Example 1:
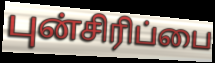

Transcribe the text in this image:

புன்சிரிப்பை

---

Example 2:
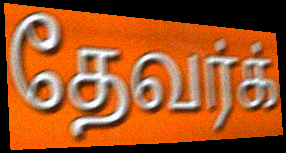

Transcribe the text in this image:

தேவர்க்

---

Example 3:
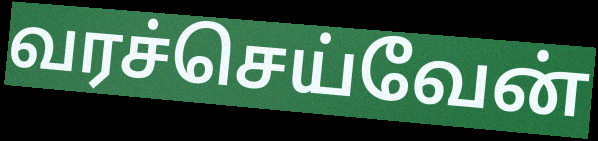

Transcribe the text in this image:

வரச்செய்வேன்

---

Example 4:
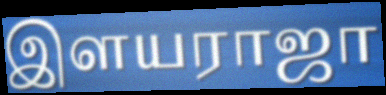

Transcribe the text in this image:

இளயராஜா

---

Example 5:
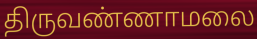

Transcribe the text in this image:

திருவண்ணாமலை